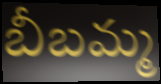
బీబమ్మ